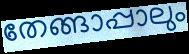
തേങ്ങാപ്പാലും